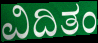
ವಿದಿತಂ